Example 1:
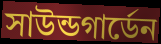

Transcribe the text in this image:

সাউন্ডগার্ডেন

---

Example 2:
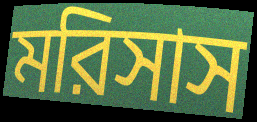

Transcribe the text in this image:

মরিসাস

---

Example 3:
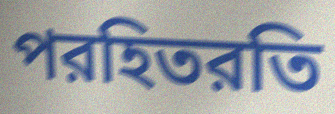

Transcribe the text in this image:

পরহিতরতি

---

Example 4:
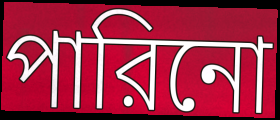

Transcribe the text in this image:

পারিনো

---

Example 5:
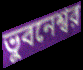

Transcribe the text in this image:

ভুবনেশ্বর